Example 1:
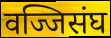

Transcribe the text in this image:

वज्जिसंघ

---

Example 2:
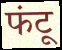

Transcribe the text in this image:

फंटू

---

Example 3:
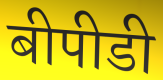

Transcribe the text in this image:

बीपीडी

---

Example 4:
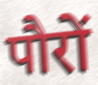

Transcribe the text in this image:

पौरों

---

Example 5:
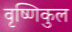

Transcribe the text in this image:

वृष्णिकुल